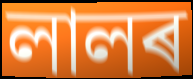
লালৰ